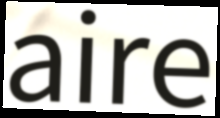
aire